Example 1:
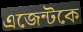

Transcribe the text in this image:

এজেন্টকে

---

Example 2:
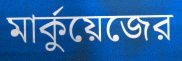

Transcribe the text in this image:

মার্কুয়েজের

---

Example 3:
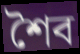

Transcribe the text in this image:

শৈব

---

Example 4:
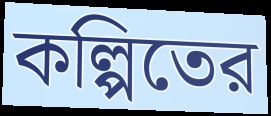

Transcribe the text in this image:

কল্পিতের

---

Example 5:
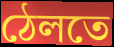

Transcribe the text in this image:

ঠেলতে